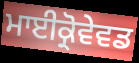
ਮਾਈਕ੍ਰੋਵੇਵਡ